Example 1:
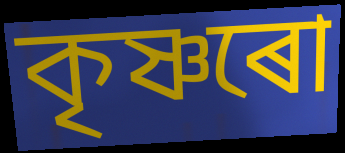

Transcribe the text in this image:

কৃষ্ণৰো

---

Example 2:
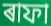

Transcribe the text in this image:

ৰাফা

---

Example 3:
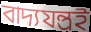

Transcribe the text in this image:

বাদ্যযন্ত্ৰই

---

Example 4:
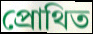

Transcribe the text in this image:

প্ৰোথিত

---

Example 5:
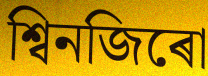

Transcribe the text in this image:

শ্বিনজিৰো